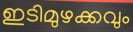
ഇടിമുഴക്കവും